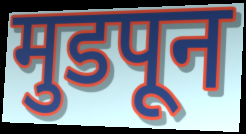
मुडपून